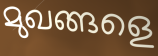
മുഖങ്ങളെ